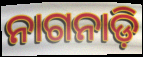
ନାଗନାଡ଼ି